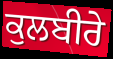
ਕੁਲਬੀਰੇ